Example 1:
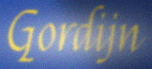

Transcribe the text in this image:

Gordijn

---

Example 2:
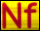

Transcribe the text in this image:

Nf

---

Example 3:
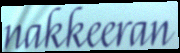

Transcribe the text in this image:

nakkeeran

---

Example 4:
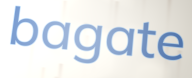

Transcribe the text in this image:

bagate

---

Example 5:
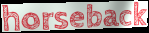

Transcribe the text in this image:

horseback